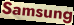
Samsung